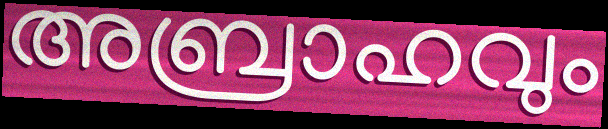
അബ്രാഹവും